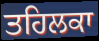
ਤਹਿਲਕਾ